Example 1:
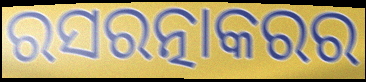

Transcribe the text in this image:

ରସରତ୍ନାକରର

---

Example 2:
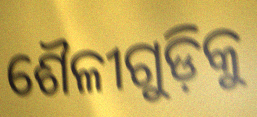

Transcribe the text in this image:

ଶୈଳୀଗୁଡ଼ିକୁ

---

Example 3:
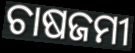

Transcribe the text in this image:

ଚାଷଜମୀ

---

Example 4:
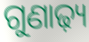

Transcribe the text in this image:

ଗୁଣାଢ଼୍ୟ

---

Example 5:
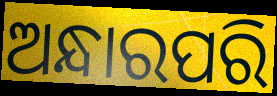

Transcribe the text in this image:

ଅନ୍ଧାରପରି